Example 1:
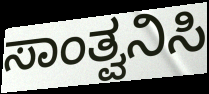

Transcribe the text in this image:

ಸಾಂತ್ವನಿಸಿ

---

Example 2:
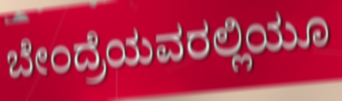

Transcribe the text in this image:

ಬೇಂದ್ರೆಯವರಲ್ಲಿಯೂ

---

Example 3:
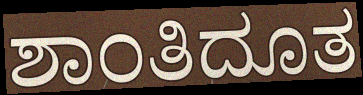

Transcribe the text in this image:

ಶಾಂತಿದೂತ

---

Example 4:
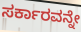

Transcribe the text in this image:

ಸರ್ಕಾರವನ್ನೇ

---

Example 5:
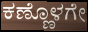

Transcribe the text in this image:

ಕಣ್ಣೊಳಗೇ